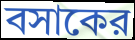
বসাকের